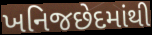
ખનિજછેદમાંથી